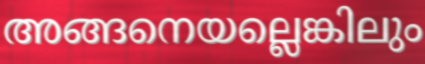
അങ്ങനെയല്ലെങ്കിലും